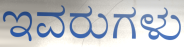
ಇವರುಗಳು